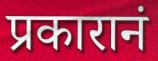
प्रकारानं